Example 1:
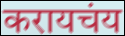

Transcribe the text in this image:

करायचंय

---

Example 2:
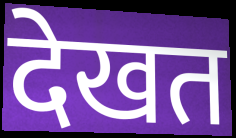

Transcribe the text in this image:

देखत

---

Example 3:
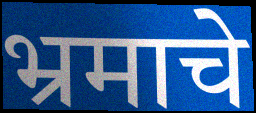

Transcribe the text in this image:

भ्रमाचे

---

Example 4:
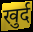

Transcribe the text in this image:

खुर्द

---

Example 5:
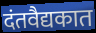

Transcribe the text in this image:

दंतवैद्यकात